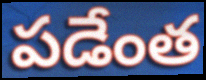
పడేంత